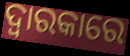
ଦ୍ବାରକାରେ